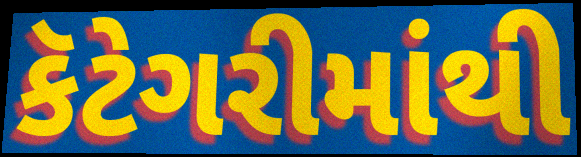
કૅટેગરીમાંથી